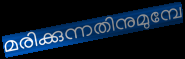
മരിക്കുന്നതിനുമുമ്പേ